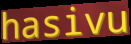
hasivu